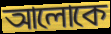
আলোকে